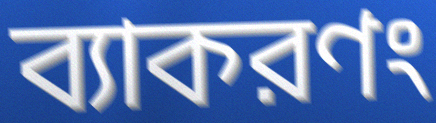
ব্যাকরণং